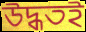
উদ্ধতই